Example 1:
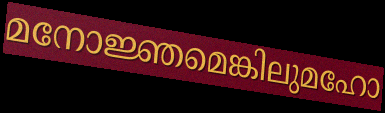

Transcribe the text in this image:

മനോജ്ഞമെങ്കിലുമഹോ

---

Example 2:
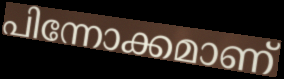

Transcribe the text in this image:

പിന്നോക്കമാണ്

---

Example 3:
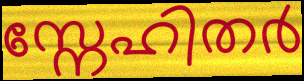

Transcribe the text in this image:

സ്നേഹിതർ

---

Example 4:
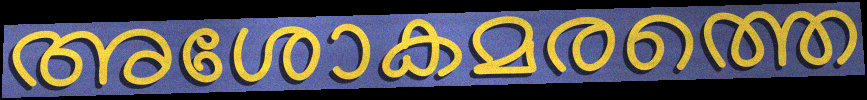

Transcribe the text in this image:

അശോകമരത്തെ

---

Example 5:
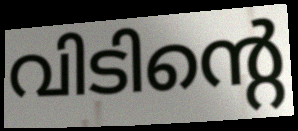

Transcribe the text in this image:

വിടിന്റെ